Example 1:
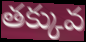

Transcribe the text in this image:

తక్కువ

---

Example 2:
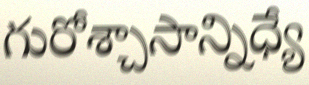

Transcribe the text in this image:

గురోశ్చాసాన్నిధ్యే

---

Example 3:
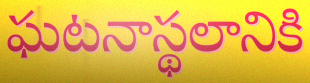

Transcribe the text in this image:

ఘటనాస్థలానికి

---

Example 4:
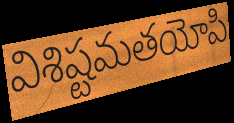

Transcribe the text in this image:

విశిష్టమతయోపి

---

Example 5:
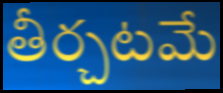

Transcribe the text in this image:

తీర్చటమే